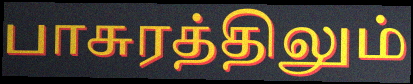
பாசுரத்திலும்